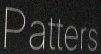
Patters